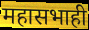
महासभाही